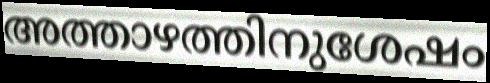
അത്താഴത്തിനുശേഷം